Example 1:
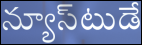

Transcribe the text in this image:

న్యూస్‌టుడే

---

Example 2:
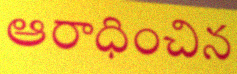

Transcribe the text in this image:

ఆరాధించిన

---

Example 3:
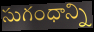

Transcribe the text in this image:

సుగంధాన్ని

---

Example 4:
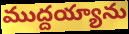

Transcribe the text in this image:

ముద్దయ్యాను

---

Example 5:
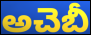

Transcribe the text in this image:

అచెబీ